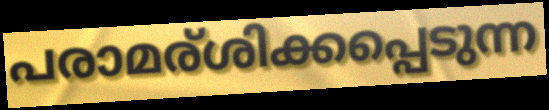
പരാമര്ശിക്കപ്പെടുന്ന